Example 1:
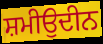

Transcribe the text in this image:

ਸ਼ਮੀਉਦੀਨ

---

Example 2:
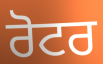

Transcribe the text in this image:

ਰੋਟਰ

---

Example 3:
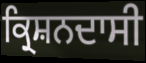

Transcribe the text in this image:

ਕ੍ਰਿਸ਼ਨਦਾਸੀ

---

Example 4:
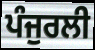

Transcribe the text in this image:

ਪੰਜੁਰਲੀ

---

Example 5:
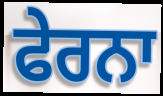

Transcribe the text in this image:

ਫੇਰਨਾ